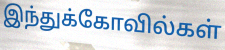
இந்துக்கோவில்கள்